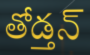
తోడ్తన్